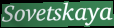
Sovetskaya